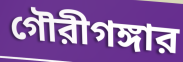
গৌরীগঙ্গার